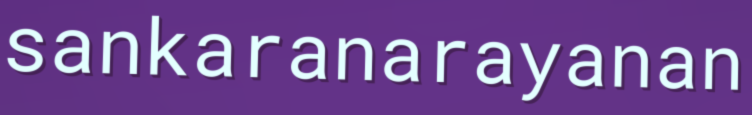
sankaranarayanan